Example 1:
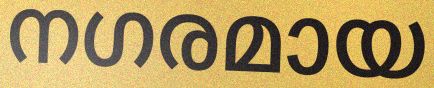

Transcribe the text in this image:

നഗരമായ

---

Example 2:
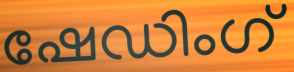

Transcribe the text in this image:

ഷേഡിംഗ്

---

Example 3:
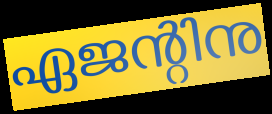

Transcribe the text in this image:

ഏജന്റിനു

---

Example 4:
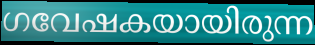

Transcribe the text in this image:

ഗവേഷകയായിരുന്ന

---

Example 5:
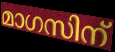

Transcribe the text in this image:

മാഗസിന്